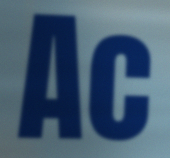
Ac